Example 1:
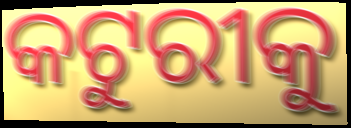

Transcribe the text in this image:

କଟୁରୀକୁ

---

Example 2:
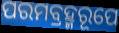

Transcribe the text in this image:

ପରମବ୍ରହ୍ମରୂପେ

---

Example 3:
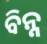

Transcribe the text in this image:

ବିନ୍ନ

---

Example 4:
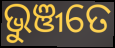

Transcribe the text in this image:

ଭୁଞ୍ଜତେ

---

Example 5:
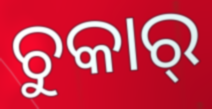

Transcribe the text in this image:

ଚୁକାର୍